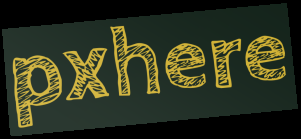
pxhere